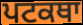
ਪਟਕਥਾ